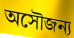
অসৌজন্য